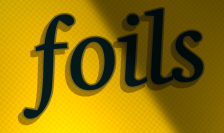
foils